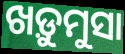
ଖଡ଼ୁମୁସା